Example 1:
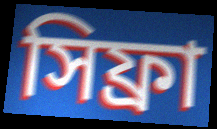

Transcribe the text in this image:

সিফ্রা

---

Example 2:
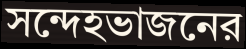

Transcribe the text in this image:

সন্দেহভাজনের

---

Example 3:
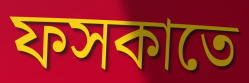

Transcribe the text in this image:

ফসকাতে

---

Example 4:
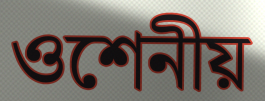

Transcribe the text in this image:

ওশেনীয়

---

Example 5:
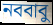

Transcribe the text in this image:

নববাবু